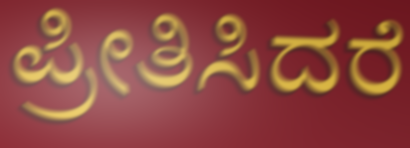
ಪ್ರೀತಿಸಿದರೆ